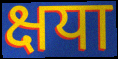
क्षया